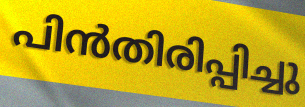
പിൻതിരിപ്പിച്ചു